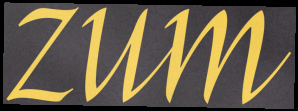
zum